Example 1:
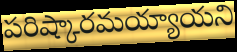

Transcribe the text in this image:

పరిష్కారమయ్యాయని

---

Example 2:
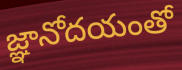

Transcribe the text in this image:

జ్ఞానోదయంతో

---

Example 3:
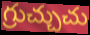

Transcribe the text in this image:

గ్రుచ్చుచు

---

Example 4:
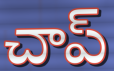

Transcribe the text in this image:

చాప్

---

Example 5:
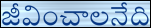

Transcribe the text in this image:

జీవించాలనేది